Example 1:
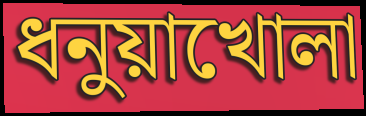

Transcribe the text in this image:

ধনুয়াখোলা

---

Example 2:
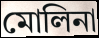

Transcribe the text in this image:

মোলিনা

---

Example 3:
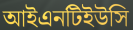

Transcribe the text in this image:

আইএনটিইউসি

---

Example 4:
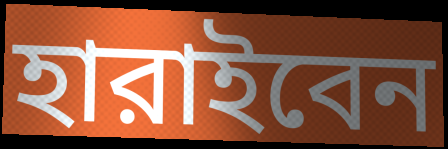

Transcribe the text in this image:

হারাইবেন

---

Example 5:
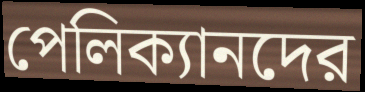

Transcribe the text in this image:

পেলিক্যানদের